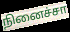
நினைச்சா